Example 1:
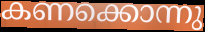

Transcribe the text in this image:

കണക്കൊന്നു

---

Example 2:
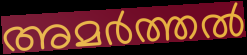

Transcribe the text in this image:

അമർത്തൽ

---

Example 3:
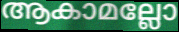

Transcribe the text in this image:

ആകാമല്ലോ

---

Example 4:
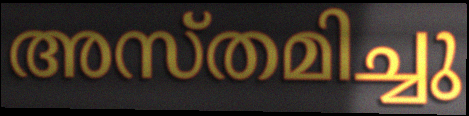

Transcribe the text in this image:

അസ്തമിച്ചു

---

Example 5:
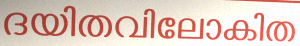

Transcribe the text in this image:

ദയിതവിലോകിത